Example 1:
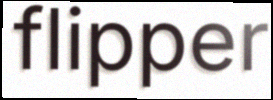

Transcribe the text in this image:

flipper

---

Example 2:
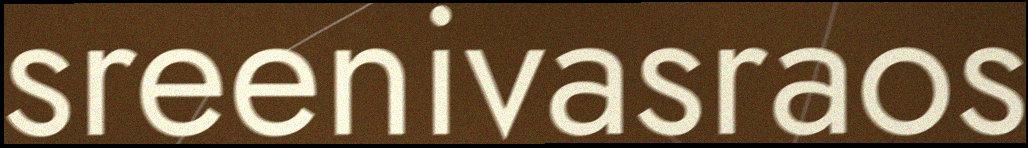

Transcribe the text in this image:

sreenivasraos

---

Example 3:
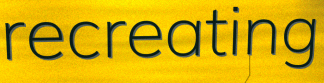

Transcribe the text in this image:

recreating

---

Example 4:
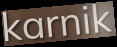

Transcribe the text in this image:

karnik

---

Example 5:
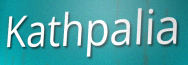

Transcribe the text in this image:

Kathpalia